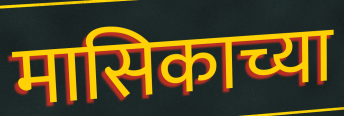
मासिकाच्या